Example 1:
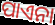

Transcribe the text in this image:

ପାଏନା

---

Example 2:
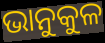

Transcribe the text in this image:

ଭାନୁକୁଳ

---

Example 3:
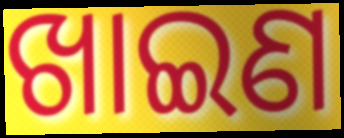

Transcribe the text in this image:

ଖାଇଣ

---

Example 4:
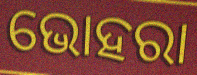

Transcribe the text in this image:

ଭୋହରା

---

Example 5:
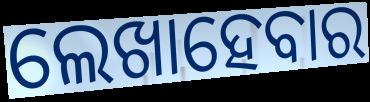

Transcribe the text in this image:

ଲେଖାହେବାର